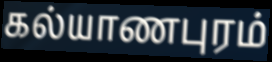
கல்யாணபுரம்